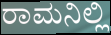
ರಾಮನಿಲ್ಲಿ